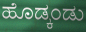
ಹೊಡ್ಕಂಡು